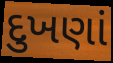
દુખણાં